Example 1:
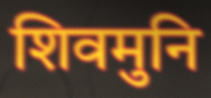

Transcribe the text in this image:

शिवमुनि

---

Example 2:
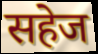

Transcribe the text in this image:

सहेज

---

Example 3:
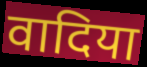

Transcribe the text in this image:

वादिया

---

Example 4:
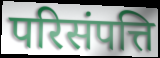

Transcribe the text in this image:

परिसंपत्ति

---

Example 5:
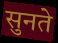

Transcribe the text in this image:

सुनते